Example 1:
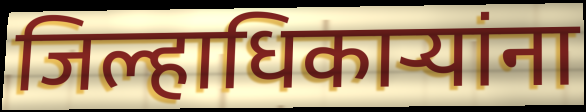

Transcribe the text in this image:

जिल्हाधिकाऱ्यांना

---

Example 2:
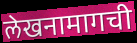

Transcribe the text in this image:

लेखनामागची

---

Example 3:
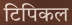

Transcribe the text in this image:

टिपिकल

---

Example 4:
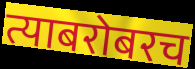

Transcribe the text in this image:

त्याबरोबरच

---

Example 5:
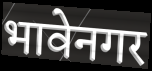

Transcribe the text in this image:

भावेनगर